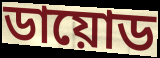
ডায়োড